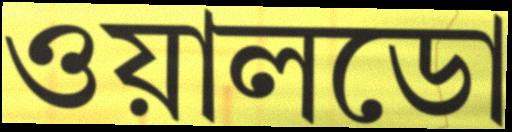
ওয়ালডো